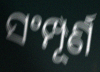
ସଂମ୍ପୂର୍ଣ